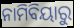
ନାମିବିୟାରୁ